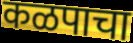
कळपाचा